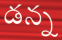
డన్న